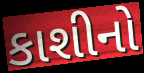
કાશીનો